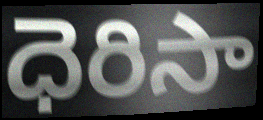
ధెరిసా